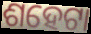
ଶହେଟା